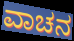
ವಾಚನ